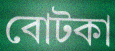
বোটকা